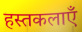
हस्तकलाएँ